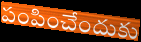
పంపించేందుకు